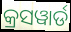
କ୍ରସୱାର୍ଡ